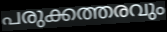
പരുക്കത്തരവും